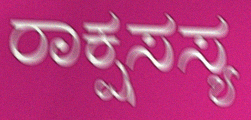
ರಾಕ್ಷಸಸ್ಯ